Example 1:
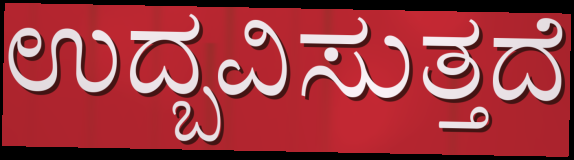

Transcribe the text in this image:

ಉದ್ಬವಿಸುತ್ತದೆ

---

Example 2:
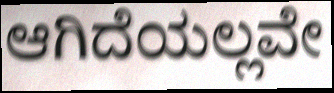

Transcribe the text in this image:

ಆಗಿದೆಯಲ್ಲವೇ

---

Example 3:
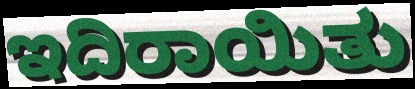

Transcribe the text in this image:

ಇದಿರಾಯಿತು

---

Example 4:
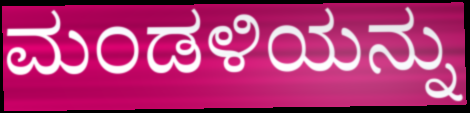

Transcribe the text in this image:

ಮಂಡಳಿಯನ್ನು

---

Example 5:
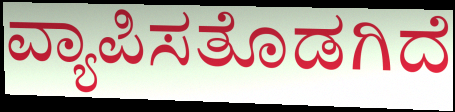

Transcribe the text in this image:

ವ್ಯಾಪಿಸತೊಡಗಿದೆ